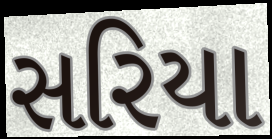
સરિયા